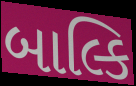
બાલ્કિ